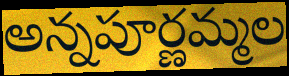
అన్నపూర్ణమ్మల